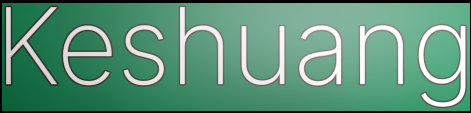
Keshuang